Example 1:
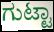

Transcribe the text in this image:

ಗುಟ್ಟಾ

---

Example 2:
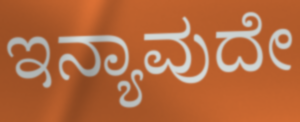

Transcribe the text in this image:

ಇನ್ಯಾವುದೇ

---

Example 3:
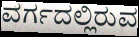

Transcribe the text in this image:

ವರ್ಗದಲ್ಲಿರುವ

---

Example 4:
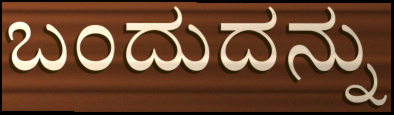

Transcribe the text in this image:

ಬಂದುದನ್ನು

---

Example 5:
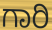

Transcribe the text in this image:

ಗಾರಿ